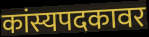
कांस्यपदकावर